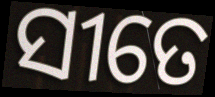
ସୀତେ